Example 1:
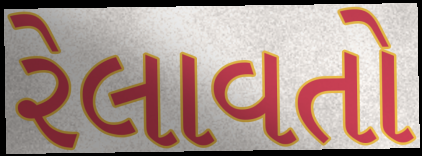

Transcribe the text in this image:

રેલાવતો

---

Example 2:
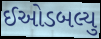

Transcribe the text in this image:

ઈઓડબલ્યુ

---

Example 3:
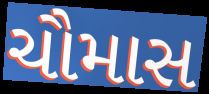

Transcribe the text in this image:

ચૌમાસ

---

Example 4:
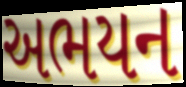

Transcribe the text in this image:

અભયન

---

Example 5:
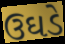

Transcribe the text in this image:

ઉઘડે